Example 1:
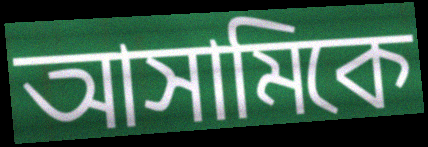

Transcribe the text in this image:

আসামিকে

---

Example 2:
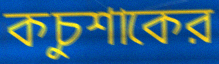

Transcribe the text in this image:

কচুশাকের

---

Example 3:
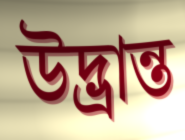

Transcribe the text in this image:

উদ্ভ্রান্ত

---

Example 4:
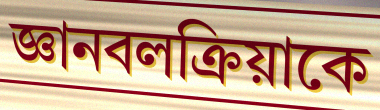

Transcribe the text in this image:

জ্ঞানবলক্রিয়াকে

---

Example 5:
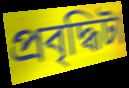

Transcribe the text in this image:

প্রবৃদ্ধিটা